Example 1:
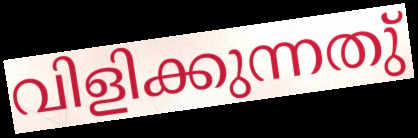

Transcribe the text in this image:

വിളിക്കുന്നതു്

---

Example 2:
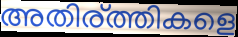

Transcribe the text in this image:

അതിര്ത്തികളെ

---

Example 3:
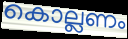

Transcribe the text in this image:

കൊല്ലണം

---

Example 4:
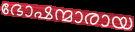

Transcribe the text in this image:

ഭോഷന്മാരായ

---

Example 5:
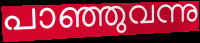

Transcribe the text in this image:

പാഞ്ഞുവന്നു